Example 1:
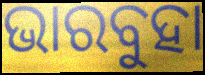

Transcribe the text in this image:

ଭାରବୁହା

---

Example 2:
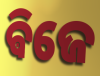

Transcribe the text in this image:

ଵିଜେ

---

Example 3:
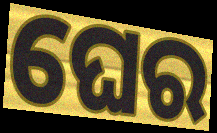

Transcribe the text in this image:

ଘେର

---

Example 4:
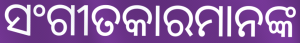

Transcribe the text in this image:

ସଂଗୀତକାରମାନଙ୍କ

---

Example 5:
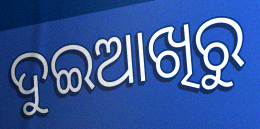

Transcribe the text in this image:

ଦୁଇଆଖିରୁ